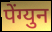
पेंग्युन